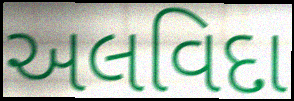
અલવિદા